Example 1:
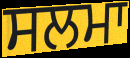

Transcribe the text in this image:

ਸਲਮਾ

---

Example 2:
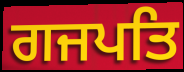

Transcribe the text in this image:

ਗਜਪਤਿ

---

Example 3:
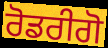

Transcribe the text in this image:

ਰੋਡਰੀਗੋ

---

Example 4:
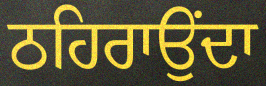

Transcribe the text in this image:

ਠਹਿਰਾਉਂਦਾ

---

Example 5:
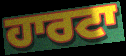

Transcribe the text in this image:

ਹਾਰਟਾ